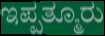
ಇಪ್ಪತ್ಮೂರು